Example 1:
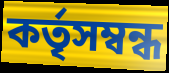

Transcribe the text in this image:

কর্তৃসম্বন্ধ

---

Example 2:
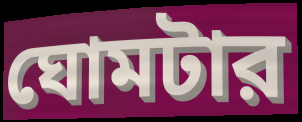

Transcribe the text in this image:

ঘোমটার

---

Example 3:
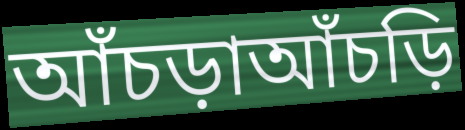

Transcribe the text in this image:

আঁচড়াআঁচড়ি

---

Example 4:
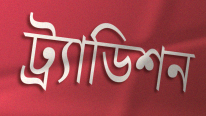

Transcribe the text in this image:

ট্র্যাডিশন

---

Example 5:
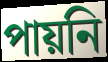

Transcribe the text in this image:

পায়নি